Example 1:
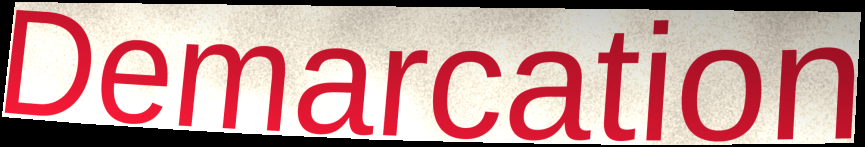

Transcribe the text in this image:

Demarcation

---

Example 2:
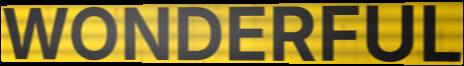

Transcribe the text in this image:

WONDERFUL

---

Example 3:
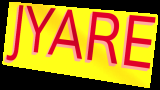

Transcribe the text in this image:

JYARE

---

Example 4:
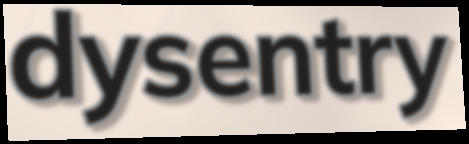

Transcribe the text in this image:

dysentry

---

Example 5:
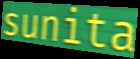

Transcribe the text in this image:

sunita